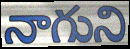
నాగుని